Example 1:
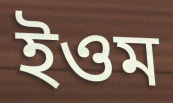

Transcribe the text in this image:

ইওম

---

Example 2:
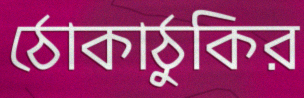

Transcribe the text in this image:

ঠোকাঠুকির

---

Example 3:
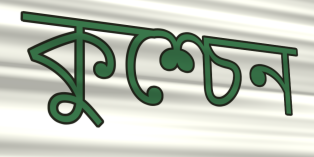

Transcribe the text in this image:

কুশ্চেন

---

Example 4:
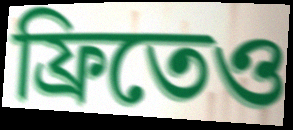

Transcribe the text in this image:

ফ্রিতেও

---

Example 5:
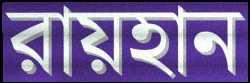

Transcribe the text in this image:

রায়হান